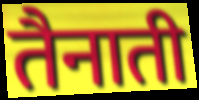
तैनाती